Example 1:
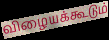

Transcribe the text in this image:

விழையக்கூடும்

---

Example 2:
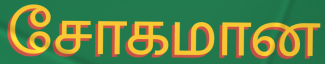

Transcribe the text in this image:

சோகமான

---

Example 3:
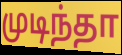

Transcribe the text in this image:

முடிந்தா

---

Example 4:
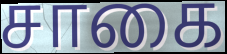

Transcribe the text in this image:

சாகை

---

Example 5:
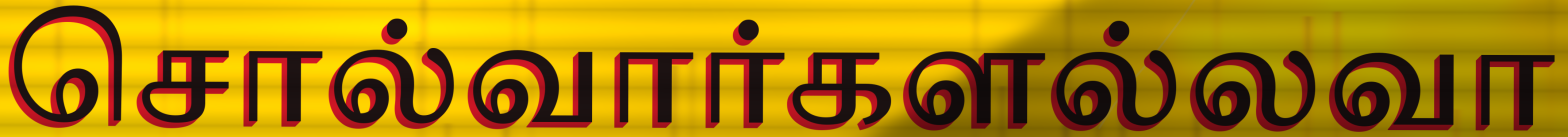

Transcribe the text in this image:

சொல்வார்களல்லவா